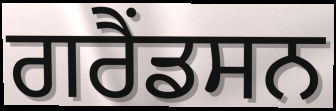
ਗਰੈਂਡਸਨ